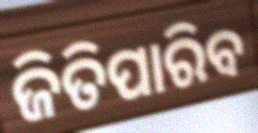
ଜିତିପାରିବ